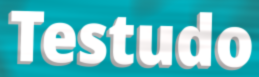
Testudo